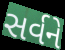
સર્વને